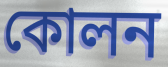
কোলন